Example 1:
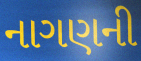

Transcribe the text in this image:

નાગણની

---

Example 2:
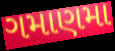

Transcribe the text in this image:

ગમાણમા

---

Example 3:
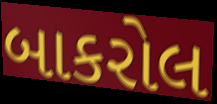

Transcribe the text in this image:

બાકરોલ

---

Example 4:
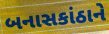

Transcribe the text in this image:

બનાસકાંઠાને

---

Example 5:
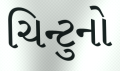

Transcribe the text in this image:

ચિન્ટુનો